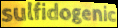
sulfidogenic